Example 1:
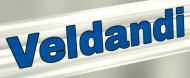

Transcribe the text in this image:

Veldandi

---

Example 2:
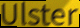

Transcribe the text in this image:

Ulster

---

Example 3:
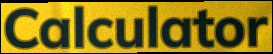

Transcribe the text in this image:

Calculator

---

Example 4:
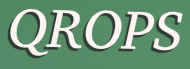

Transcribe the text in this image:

QROPS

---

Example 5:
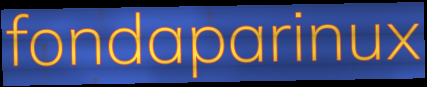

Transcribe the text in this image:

fondaparinux